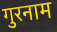
गुरनाम